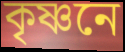
কৃষ্ণনে